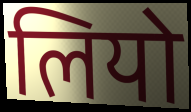
लियो